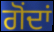
ਗੋਂਦਾਂ